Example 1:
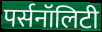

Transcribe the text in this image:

पर्सनॉलिटी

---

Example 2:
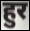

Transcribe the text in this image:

हुर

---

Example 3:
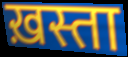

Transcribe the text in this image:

ख़स्ता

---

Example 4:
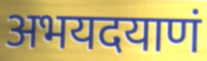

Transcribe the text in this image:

अभयदयाणं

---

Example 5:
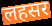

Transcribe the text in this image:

लहसर